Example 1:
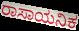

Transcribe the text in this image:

ರಾಸಾಯನಿಕ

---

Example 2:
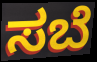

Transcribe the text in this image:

ಸಬೆ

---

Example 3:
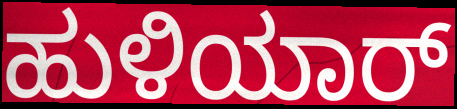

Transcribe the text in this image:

ಹುಳಿಯಾರ್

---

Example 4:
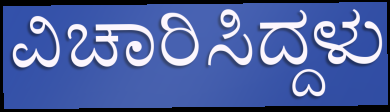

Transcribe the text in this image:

ವಿಚಾರಿಸಿದ್ದಳು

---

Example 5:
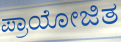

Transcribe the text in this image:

ಪ್ರಾಯೋಜಿತ